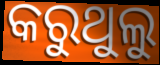
କରୁଥୁଲୁ